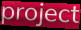
project